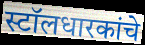
स्टॉलधारकांचे